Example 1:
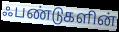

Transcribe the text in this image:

ஃபண்டுகளின்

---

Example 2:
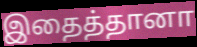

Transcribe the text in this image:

இதைத்தானா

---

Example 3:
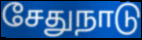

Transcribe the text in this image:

சேதுநாடு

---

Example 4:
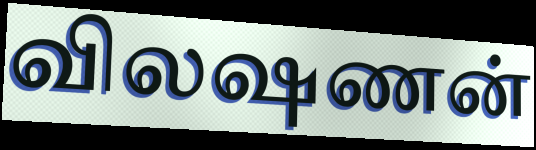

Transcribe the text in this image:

விலஷணன்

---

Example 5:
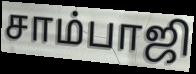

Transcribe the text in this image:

சாம்பாஜி